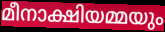
മീനാക്ഷിയമ്മയും